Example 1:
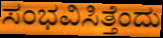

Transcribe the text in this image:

ಸಂಭವಿಸಿತ್ತೆಂದು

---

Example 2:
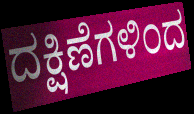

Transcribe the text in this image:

ದಕ್ಷಿಣೆಗಳಿಂದ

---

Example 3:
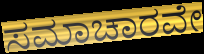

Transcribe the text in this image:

ಸಮಾಚಾರವೇ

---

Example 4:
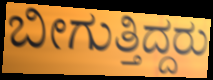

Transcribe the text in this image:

ಬೀಗುತ್ತಿದ್ದರು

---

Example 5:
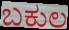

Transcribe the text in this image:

ಬಕುಲ